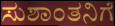
ಸುಶಾಂತನಿಗೆ